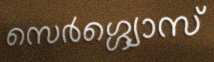
സെർഗ്ഗ്യൊസ്